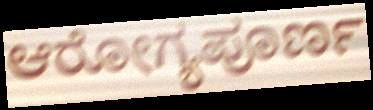
ಆರೋಗ್ಯಪೂರ್ಣ